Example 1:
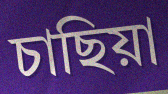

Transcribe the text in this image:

চাছিয়া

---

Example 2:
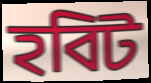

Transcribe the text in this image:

হবিট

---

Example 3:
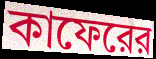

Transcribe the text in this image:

কাফেরের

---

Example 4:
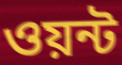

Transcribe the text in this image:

ওয়ন্ট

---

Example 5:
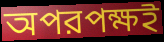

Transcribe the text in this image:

অপরপক্ষই